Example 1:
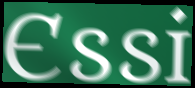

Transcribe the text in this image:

Essi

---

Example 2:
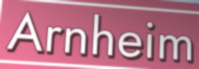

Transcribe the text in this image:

Arnheim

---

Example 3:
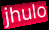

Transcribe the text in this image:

jhulo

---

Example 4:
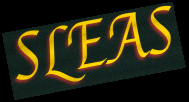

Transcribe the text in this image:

SLEAS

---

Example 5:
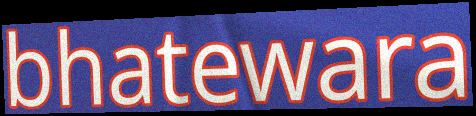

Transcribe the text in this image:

bhatewara